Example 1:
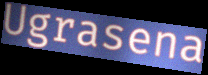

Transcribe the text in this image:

Ugrasena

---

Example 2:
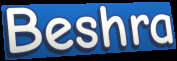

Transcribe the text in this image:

Beshra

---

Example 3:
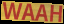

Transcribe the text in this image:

WAAH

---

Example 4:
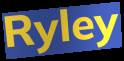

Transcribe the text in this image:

Ryley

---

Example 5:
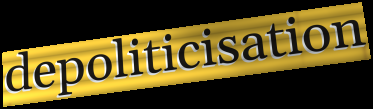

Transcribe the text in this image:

depoliticisation